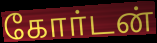
கோர்டன்